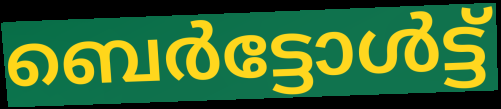
ബെർട്ടോൾട്ട്